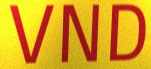
VND